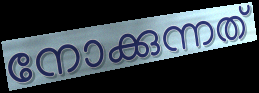
നോക്കുന്നത്